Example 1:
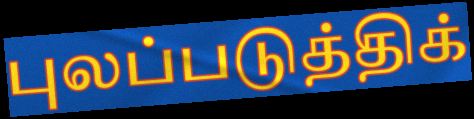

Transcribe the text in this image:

புலப்படுத்திக்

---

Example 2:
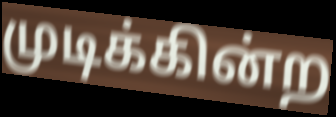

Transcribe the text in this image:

முடிக்கின்ற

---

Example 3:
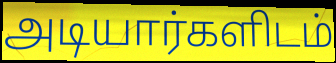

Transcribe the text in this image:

அடியார்களிடம்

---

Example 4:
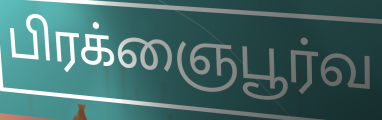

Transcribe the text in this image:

பிரக்ஞைபூர்வ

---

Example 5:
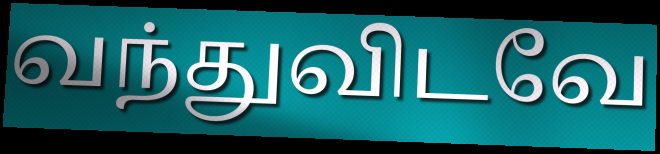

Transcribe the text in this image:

வந்துவிடவே